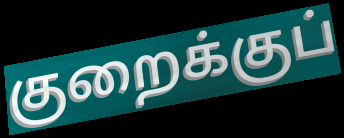
குறைக்குப்